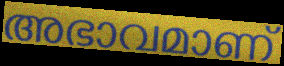
അഭാവമാണ്